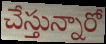
చేస్తున్నారో